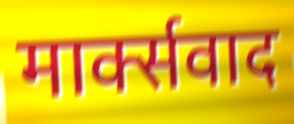
मार्क्सवाद